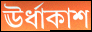
ঊর্ধাকাশ